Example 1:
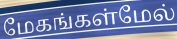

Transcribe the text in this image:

மேகங்கள்மேல்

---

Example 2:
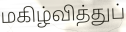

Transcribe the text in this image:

மகிழ்வித்துப்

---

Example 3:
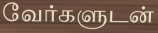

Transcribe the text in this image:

வேர்களுடன்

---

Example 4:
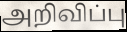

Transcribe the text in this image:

அறிவிப்பு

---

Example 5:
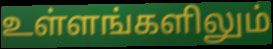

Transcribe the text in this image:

உள்ளங்களிலும்